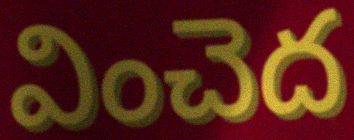
వించెద